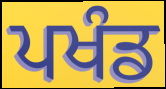
ਪਖੰਡ